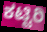
ಕಟ್ಟಿರಿ